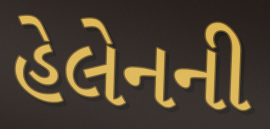
હેલેનની